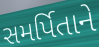
સમર્પિતાને